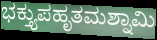
ಭಕ್ತ್ಯುಪಹೃತಮಶ್ನಾಮಿ